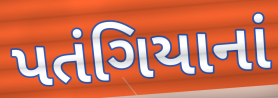
પતંગિયાનાં